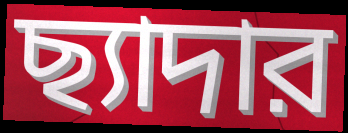
ছ্যাদার